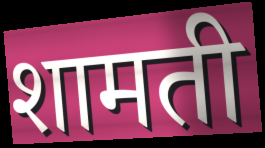
शामती